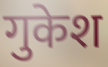
गुकेश